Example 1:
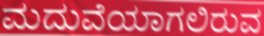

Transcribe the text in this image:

ಮದುವೆಯಾಗಲಿರುವ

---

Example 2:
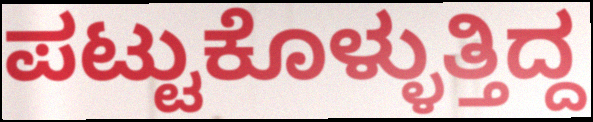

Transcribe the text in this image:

ಪಟ್ಟುಕೊಳ್ಳುತ್ತಿದ್ದ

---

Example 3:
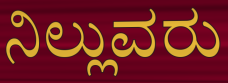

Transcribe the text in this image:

ನಿಲ್ಲುವರು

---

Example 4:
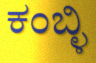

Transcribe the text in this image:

ಕಂಬ್ಳಿ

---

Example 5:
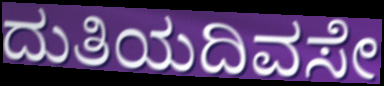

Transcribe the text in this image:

ದುತಿಯದಿವಸೇ